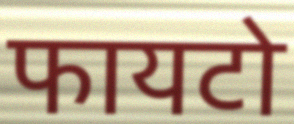
फायटो